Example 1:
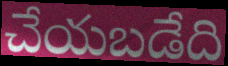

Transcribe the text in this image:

చేయబడేది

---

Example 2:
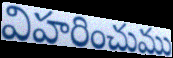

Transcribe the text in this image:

విహరించుము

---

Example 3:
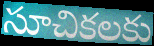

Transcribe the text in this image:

సూచికలకు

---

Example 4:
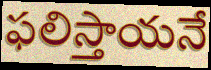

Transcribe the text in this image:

ఫలిస్తాయనే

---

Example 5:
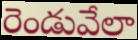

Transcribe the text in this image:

రెండువేలా